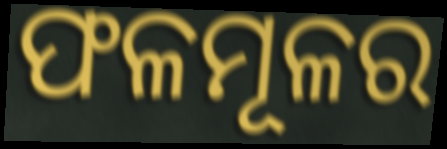
ଫଳମୂଳର